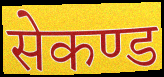
सेकण्ड